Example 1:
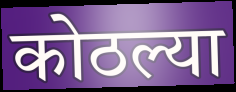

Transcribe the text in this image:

कोठल्या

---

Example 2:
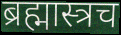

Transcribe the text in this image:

ब्रह्मास्त्रच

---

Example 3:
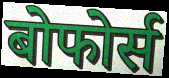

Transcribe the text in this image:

बोफोर्स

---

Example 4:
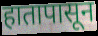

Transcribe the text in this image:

हातापासून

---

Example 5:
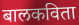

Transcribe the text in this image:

बालकविता